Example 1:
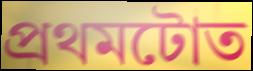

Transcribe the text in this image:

প্ৰথমটোত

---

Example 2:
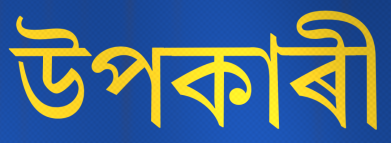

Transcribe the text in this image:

উপকাৰী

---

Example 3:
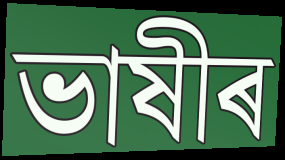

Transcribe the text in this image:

ভাষীৰ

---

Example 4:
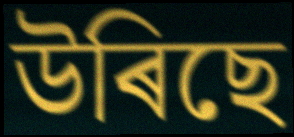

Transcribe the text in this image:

উৰিছে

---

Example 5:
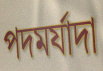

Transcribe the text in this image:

পদমৰ্যাদা